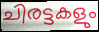
ചിരട്ടകളും